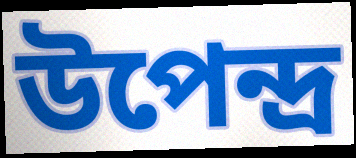
উপেন্দ্ৰ